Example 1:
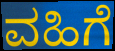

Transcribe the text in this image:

ವಹಿಗೆ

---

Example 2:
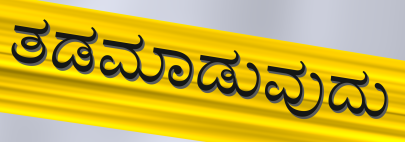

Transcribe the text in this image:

ತಡಮಾಡುವುದು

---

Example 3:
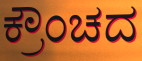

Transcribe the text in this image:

ಕ್ರೌಂಚದ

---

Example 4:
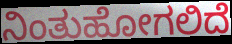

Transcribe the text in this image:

ನಿಂತುಹೋಗಲಿದೆ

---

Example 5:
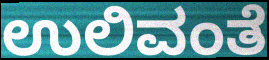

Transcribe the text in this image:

ಉಲಿವಂತೆ